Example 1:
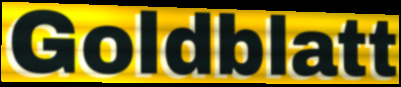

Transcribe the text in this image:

Goldblatt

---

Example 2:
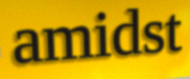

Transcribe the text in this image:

amidst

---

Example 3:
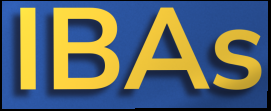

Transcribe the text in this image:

IBAs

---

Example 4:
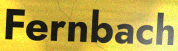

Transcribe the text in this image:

Fernbach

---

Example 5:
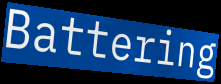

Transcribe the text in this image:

Battering